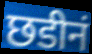
छडीनं